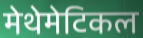
मेथेमेटिकल